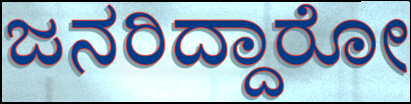
ಜನರಿದ್ದಾರೋ